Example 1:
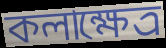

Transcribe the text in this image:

কলাক্ষেত্ৰ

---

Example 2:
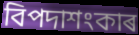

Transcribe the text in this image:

বিপদাশংকাৰ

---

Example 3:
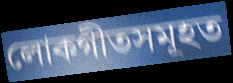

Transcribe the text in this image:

লোকগীতসমূহত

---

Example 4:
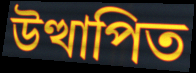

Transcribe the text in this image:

উত্থাপিত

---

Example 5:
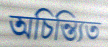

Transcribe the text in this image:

অচিন্ত্যিত